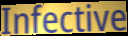
Infective